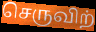
செருவிற்